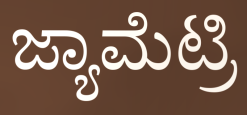
ಜ್ಯಾಮೆಟ್ರಿ